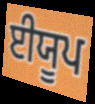
ਈਯੂਪ